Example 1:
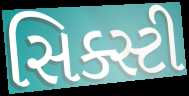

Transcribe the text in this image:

સિક્સ્ટી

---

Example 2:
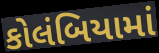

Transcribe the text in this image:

કોલંબિયામાં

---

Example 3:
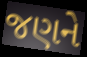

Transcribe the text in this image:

જણને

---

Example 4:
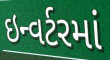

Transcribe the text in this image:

ઇન્વર્ટરમાં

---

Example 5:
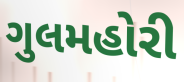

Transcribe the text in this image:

ગુલમહોરી